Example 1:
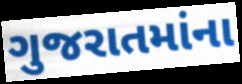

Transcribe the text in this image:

ગુજરાતમાંના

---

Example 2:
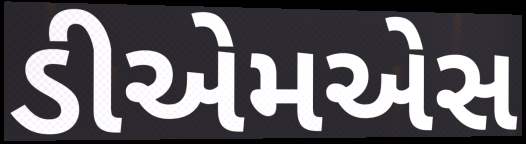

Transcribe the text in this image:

ડીએમએસ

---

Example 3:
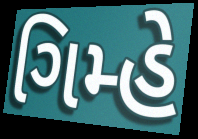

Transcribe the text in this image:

ગિમ્હે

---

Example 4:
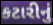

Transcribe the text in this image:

કટારીનું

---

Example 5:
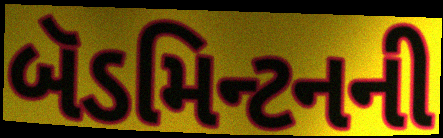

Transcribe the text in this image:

બૅડમિન્ટનની